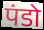
पंडो